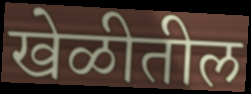
खेळीतील